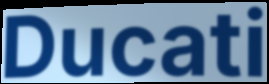
Ducati